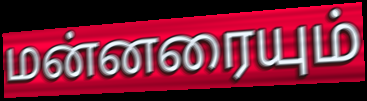
மன்னரையும்